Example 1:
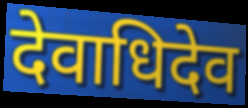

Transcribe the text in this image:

देवाधिदेव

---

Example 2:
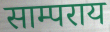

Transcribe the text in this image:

साम्पराय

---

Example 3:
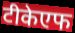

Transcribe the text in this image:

टीकेएफ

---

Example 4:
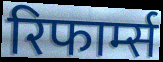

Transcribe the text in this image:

रिफार्म्स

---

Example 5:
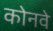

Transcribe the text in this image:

कोनवे